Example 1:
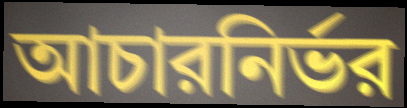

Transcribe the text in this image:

আচারনির্ভর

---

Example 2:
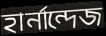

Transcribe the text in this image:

হার্নান্দেজ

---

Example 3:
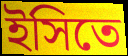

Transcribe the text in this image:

ইসিতে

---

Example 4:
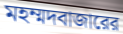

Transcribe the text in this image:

মহম্মদবাজারের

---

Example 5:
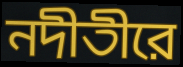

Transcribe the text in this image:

নদীতীরে